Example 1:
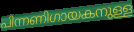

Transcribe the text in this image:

പിന്നണിഗായകനുള്ള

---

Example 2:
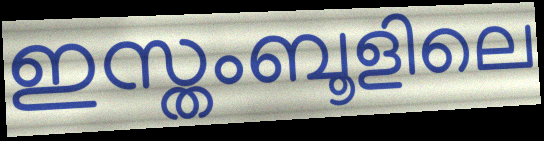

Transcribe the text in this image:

ഇസ്തംബൂളിലെ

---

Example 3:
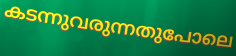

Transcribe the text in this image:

കടന്നുവരുന്നതുപോലെ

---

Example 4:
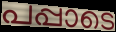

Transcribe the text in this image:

പപ്പാടെ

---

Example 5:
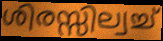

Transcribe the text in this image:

ശിരസ്സില്വച്ച്